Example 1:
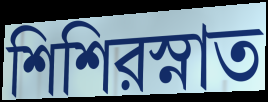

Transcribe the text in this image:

শিশিরস্নাত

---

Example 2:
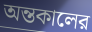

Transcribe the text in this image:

অন্তকালের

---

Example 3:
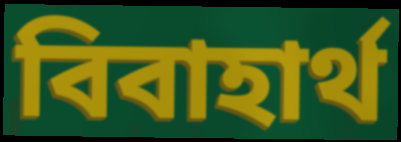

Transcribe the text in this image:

বিবাহার্থ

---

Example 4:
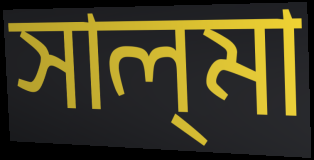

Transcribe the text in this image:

সাল্‌মা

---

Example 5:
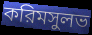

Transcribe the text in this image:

করিমসুলভ